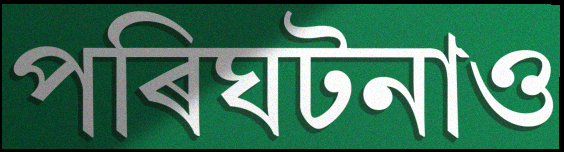
পৰিঘটনাও